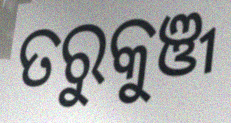
ତରୁକୁଞ୍ଜ